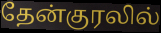
தேன்குரலில்